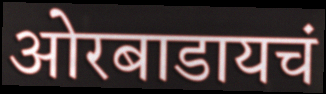
ओरबाडायचं